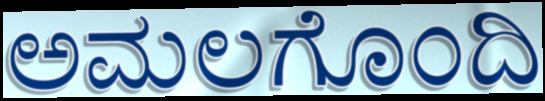
ಅಮಲಗೊಂದಿ